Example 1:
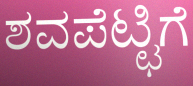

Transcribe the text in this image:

ಶವಪೆಟ್ಟಿಗೆ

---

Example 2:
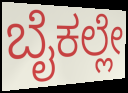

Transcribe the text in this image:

ಬೈಕಲ್ಲೇ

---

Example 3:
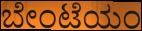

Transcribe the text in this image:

ಬೇಂಟೆಯಂ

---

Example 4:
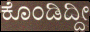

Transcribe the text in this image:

ಕೊಂಡಿದ್ದೀ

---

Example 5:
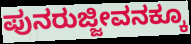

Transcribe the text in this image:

ಪುನರುಜ್ಜೀವನಕ್ಕೂ